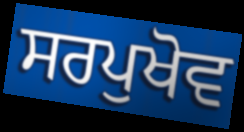
ਸਰਪੁਖੋਵ